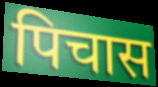
पिचास